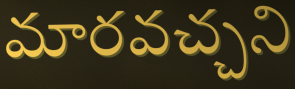
మారవచ్చని